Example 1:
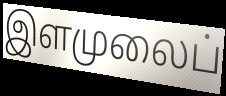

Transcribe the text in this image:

இளமுலைப்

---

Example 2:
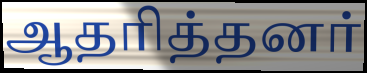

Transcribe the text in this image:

ஆதரித்தனர்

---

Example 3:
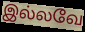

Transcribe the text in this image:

இல்லவே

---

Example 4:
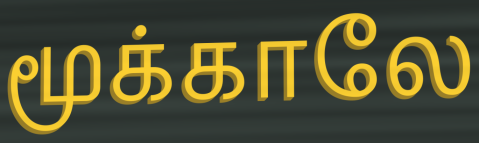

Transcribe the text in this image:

மூக்காலே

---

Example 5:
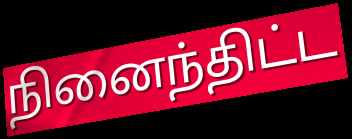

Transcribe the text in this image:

நினைந்திட்ட